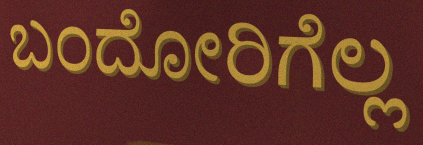
ಬಂದೋರಿಗೆಲ್ಲ